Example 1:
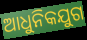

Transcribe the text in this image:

ଆଧୁନିକଯୁଗ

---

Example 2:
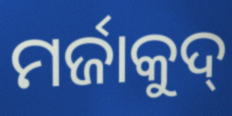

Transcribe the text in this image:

ମର୍ଜାକୁଦ୍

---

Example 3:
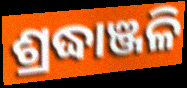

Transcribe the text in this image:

ଶ୍ରଦ୍ଧାଞ୍ଜଳି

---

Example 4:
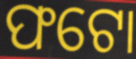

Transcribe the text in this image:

ଫଟୋ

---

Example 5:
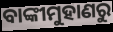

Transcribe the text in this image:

ବାଙ୍କୀମୁହାଣରୁ